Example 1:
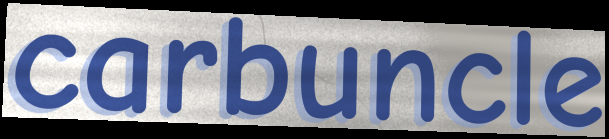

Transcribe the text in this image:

carbuncle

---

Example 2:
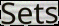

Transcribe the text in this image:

Sets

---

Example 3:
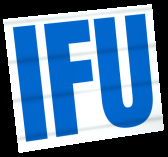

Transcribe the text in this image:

IFU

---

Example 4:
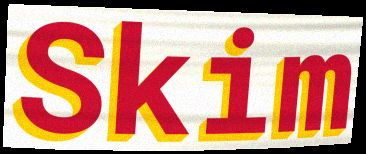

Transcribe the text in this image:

Skim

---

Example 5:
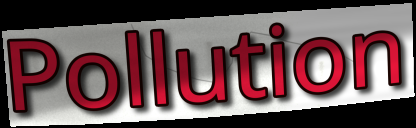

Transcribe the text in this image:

Pollution